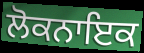
ਲੋਕਨਾਇਕ